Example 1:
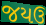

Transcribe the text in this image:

જયઉ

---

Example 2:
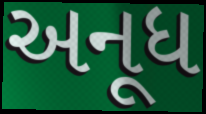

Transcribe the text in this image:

અનૂધ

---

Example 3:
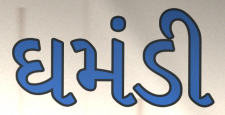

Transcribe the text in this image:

ઘમંડી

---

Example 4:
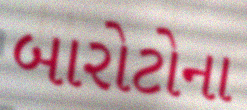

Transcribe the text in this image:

બારોટોના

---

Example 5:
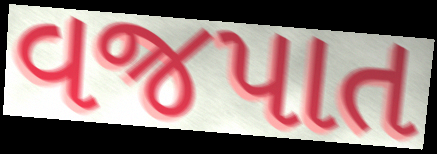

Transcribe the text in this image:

વજ્રપાત